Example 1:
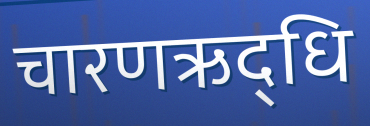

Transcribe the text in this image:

चारणऋद्धि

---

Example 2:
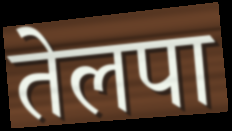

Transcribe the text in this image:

तेलपा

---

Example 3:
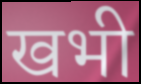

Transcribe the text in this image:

खभी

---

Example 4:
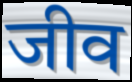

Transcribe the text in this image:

जीव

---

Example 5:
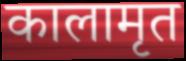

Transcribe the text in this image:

कालामृत